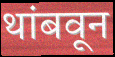
थांबवून